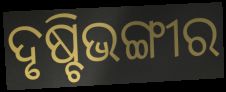
ଦୃଷ୍ଚିଭଙ୍ଗୀର